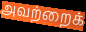
அவற்றைக்